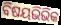
ବିଷୟଭିଭିକ